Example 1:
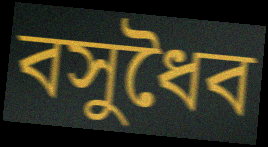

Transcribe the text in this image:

বসুধৈব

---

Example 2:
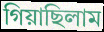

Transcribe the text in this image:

গিয়াছিলাম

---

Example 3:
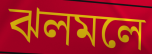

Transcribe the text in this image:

ঝলমলে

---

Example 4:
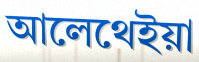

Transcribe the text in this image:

আলেথেইয়া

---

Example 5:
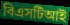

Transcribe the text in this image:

বিএসটিআই